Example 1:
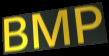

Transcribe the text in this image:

BMP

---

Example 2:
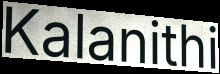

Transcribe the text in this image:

Kalanithi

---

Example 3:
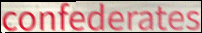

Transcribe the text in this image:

confederates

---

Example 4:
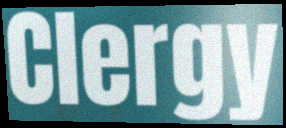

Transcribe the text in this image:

Clergy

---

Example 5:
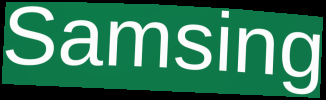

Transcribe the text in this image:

Samsing